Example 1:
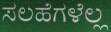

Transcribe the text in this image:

ಸಲಹೆಗಳೆಲ್ಲ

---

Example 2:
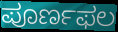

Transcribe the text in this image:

ಪೂರ್ಣಫಲ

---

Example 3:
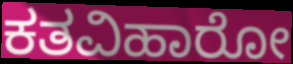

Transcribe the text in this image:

ಕತವಿಹಾರೋ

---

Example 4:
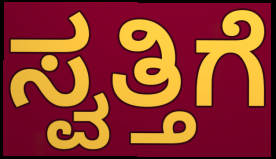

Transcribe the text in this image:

ಸ್ವತ್ತಿಗೆ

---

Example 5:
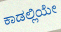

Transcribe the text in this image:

ಕಾಡಲ್ಲಿಯೇ